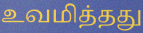
உவமித்தது